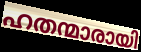
ഹതന്മാരായി